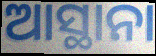
ଆସ୍ଥାନା